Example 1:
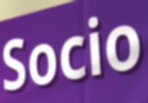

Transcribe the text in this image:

Socio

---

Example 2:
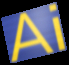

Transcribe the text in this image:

Ai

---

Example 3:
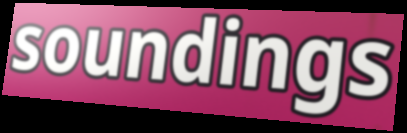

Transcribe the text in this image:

soundings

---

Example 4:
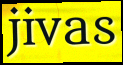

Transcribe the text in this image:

jivas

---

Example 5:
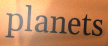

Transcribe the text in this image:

planets